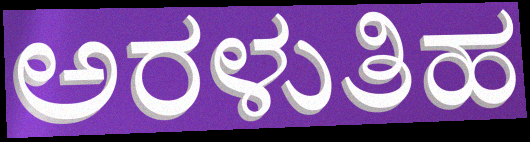
ಅರಳುತಿಹ